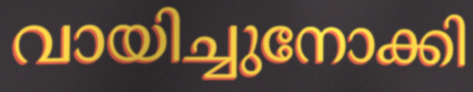
വായിച്ചുനോക്കി